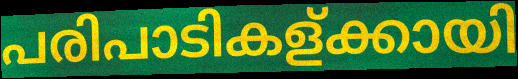
പരിപാടികള്ക്കായി